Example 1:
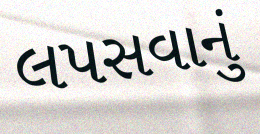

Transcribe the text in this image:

લપસવાનું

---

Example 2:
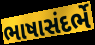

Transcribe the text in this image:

ભાષાસંદર્ભે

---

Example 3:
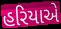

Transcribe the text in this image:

હરિયાએ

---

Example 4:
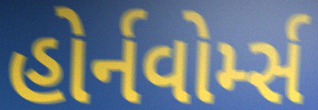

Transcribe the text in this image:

હોર્નવોર્મ્સ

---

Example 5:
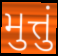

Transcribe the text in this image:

મુત્તું